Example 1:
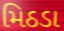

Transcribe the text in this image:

મિઠડા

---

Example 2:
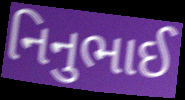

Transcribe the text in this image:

નિનુભાઈ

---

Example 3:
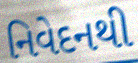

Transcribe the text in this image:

નિવેદનથી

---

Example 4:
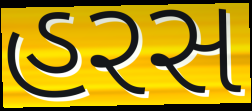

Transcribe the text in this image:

હરસ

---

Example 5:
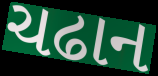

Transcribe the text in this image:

ચઢાન